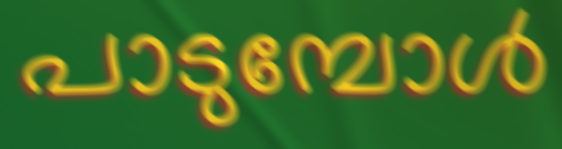
പാടുമ്പോൾ